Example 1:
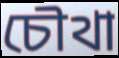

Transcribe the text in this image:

চৌথা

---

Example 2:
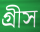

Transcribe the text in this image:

গ্রীস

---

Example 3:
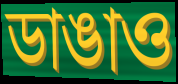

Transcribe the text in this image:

ডাঙাও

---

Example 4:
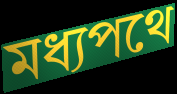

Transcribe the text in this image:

মধ্যপথে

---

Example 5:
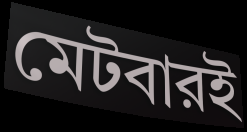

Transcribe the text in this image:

মেটবারই